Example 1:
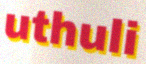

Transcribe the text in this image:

uthuli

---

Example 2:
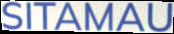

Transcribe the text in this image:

SITAMAU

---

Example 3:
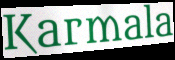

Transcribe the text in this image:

Karmala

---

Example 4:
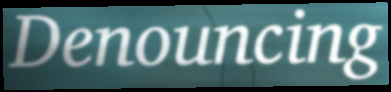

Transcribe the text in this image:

Denouncing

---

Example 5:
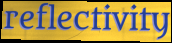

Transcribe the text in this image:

reflectivity